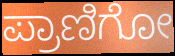
ಪ್ರಾಣಿಗೋ